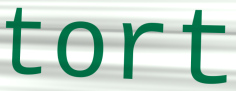
tort